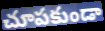
చూపకుండా